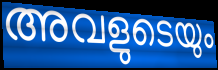
അവളുടെയും